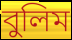
বুলিম